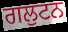
ਗਲੁਟਨ